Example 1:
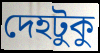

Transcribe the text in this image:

দেহটুকু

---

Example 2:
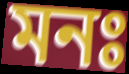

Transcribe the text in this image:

মনঃ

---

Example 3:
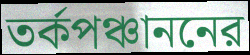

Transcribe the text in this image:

তর্কপঞ্চাননের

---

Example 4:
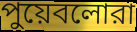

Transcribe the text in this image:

পুয়েবলোরা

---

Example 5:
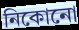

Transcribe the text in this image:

নিকোনো